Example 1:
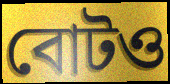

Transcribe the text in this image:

বোটও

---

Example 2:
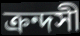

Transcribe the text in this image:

ক্রন্দসী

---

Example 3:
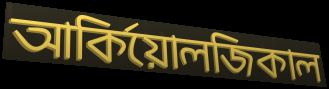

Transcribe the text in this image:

আর্কিয়োলজিকাল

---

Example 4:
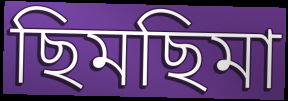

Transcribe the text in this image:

ছিমছিমা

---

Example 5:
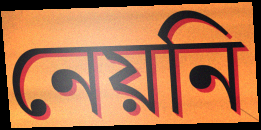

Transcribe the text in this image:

নেয়নি